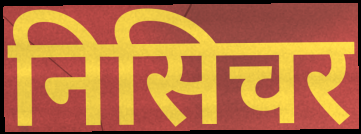
निसिचर